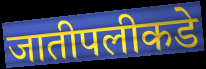
जातीपलीकडे